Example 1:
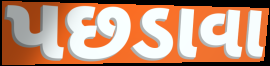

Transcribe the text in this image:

પછડાવા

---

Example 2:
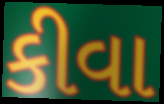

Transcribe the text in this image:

કીવા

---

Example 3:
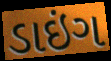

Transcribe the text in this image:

ડાઇંગ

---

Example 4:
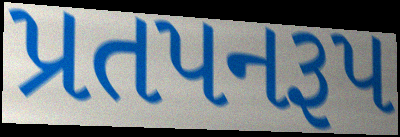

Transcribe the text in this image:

પ્રતપનરૂપ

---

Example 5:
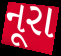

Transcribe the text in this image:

નૂરા